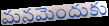
మనమెందుకు